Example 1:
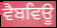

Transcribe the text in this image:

ਵੈਬਵਿਊ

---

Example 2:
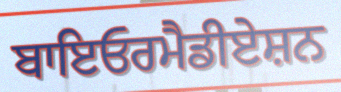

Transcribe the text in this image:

ਬਾਇਓਰਮੈਡੀਏਸ਼ਨ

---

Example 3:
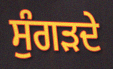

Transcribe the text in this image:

ਸੁੰਗੜਦੇ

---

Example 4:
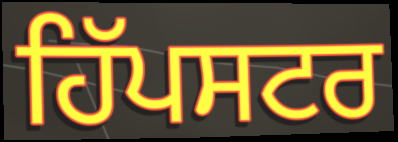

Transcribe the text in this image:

ਹਿੱਪਸਟਰ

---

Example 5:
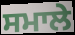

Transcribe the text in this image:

ਸਮਾਲੇ